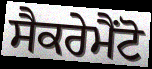
ਸੈਕਰੇਮੈਂਟੋ